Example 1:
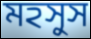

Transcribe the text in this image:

মহসুস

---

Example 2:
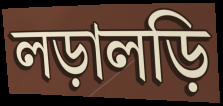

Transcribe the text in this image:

লড়ালড়ি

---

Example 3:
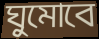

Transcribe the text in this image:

ঘুমোবে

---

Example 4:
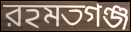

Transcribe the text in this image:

রহমতগঞ্জ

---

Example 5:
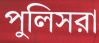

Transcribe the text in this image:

পুলিসরা